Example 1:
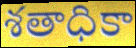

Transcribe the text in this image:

శతాధికా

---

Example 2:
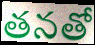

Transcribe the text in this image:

తనతో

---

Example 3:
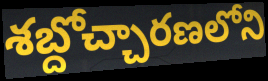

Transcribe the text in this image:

శబ్దోచ్చారణలోని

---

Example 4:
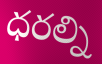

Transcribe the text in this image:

ధరల్ని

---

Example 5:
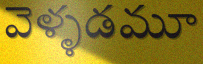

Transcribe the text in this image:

వెళ్ళడమూ